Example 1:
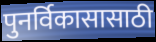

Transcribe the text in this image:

पुनर्विकासासाठी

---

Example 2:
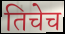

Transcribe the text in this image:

तिचेच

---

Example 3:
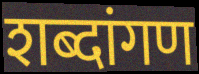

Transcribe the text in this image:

शब्दांगण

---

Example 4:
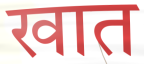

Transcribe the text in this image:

खात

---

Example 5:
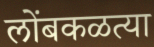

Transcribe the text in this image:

लोंबकळत्या